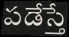
పడేస్తే